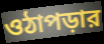
ওঠাপড়ার